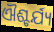
ଐଶ୍ଚର୍ଯ୍ୟ